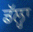
ਡੱਲ੍ਹਾ